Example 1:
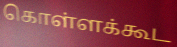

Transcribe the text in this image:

கொள்ளக்கூட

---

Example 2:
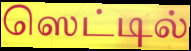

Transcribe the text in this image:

ஸெட்டில்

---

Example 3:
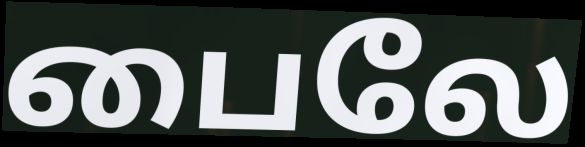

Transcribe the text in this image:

பைலே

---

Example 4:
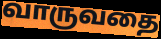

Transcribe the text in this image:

வாருவதை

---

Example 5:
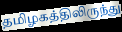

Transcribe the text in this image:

தமிழகத்திலிருந்து